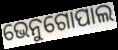
ଭେନୁଗୋପାଲ